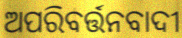
ଅପରିବର୍ତ୍ତନବାଦୀ